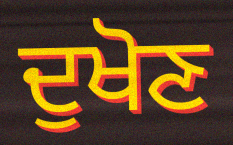
ਦੁਖੋਣ